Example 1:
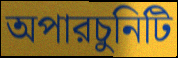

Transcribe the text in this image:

অপারচুনিটি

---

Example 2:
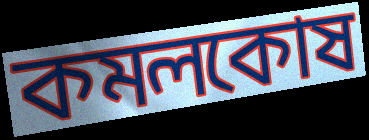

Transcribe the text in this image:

কমলকোষ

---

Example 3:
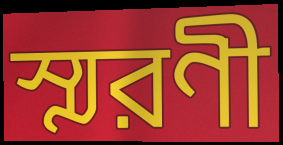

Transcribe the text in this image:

স্মরণী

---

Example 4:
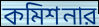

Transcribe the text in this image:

কমিশনার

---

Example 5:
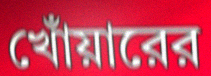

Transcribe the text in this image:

খোঁয়ারের